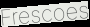
Frescoes